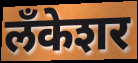
लँकेशर